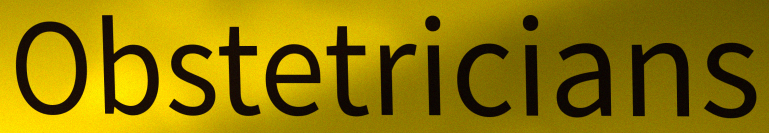
Obstetricians